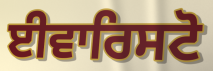
ਈਵਾਰਿਸਟੋ